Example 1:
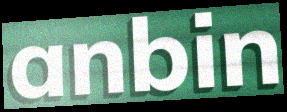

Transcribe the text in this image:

anbin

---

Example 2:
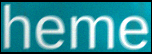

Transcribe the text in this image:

heme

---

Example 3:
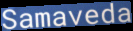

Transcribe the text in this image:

Samaveda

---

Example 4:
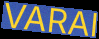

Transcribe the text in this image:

VARAI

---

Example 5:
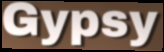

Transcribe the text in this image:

Gypsy